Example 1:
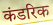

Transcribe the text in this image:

कंडरिक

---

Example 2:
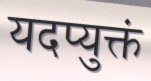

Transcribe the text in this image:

यदप्युक्तं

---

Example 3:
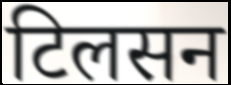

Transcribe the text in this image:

टिलसन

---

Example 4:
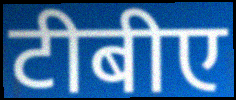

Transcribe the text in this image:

टीबीए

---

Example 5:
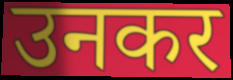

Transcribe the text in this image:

उनकर